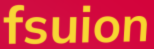
fsuion